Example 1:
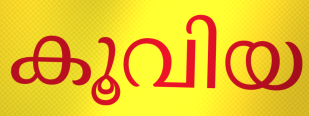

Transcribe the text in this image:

കൂവിയ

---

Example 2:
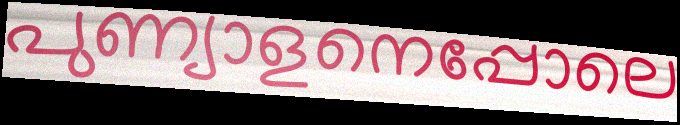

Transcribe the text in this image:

പുണ്യാളനെപ്പോലെ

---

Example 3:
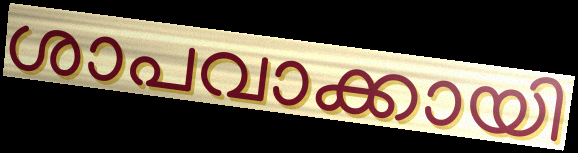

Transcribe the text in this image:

ശാപവാക്കായി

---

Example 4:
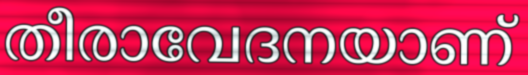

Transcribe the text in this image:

തീരാവേദനയാണ്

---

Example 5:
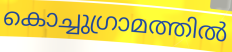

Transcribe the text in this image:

കൊച്ചുഗ്രാമത്തിൽ